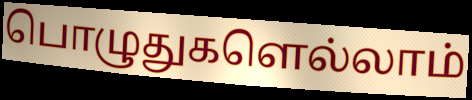
பொழுதுகளெல்லாம்